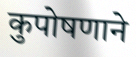
कुपोषणाने